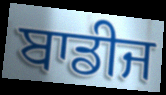
ਬਾਡੀਜ